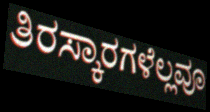
ತಿರಸ್ಕಾರಗಳೆಲ್ಲವೂ